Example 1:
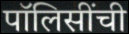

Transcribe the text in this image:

पॉलिसींची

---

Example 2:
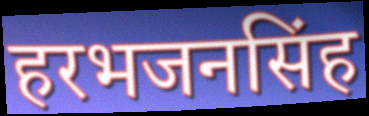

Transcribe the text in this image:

हरभजनसिंह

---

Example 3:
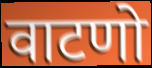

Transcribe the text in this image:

वाटणो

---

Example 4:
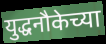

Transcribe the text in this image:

युद्धनौकेच्या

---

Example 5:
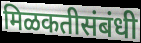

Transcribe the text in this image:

मिळकतीसंबंधी